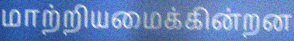
மாற்றியமைக்கின்றன